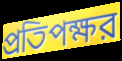
প্রতিপক্ষর